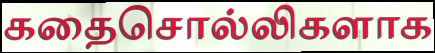
கதைசொல்லிகளாக